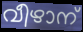
വീഴാന്